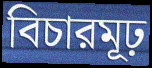
বিচারমূঢ়